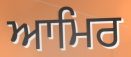
ਆਮਿਰ